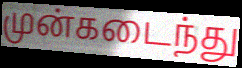
முன்கடைந்து